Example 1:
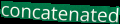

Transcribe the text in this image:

concatenated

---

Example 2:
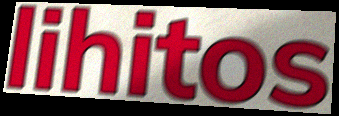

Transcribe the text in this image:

lihitos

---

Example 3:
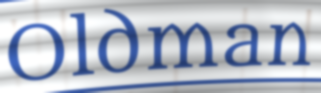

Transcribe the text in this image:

Oldman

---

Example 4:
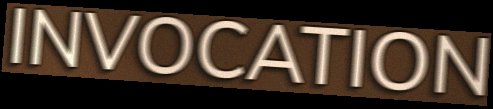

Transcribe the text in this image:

INVOCATION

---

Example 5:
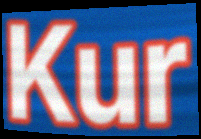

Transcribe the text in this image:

Kur